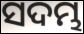
ସଦମ୍ଭ